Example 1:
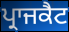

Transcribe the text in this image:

ਪ੍ਰਾਜਕੈਟ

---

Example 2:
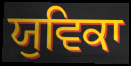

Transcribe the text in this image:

ਯੁਵਿਕਾ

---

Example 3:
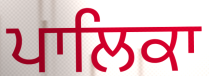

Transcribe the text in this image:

ਪਾਲਿਕਾ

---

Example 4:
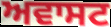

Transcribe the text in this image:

ਅਵਾਸਟ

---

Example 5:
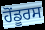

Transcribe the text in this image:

ਹੋਂਡੂਰਸ